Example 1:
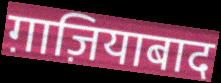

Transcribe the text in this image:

ग़ाज़ियाबाद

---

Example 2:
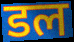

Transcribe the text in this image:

डल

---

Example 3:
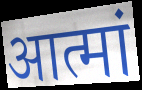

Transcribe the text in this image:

आत्मां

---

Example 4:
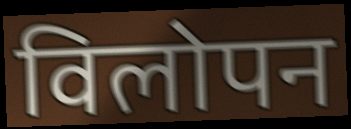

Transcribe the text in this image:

विलोपन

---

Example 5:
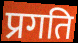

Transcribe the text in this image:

प्रगति